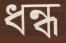
ধন্ধ